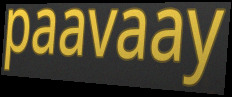
paavaay